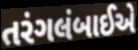
તરંગલંબાઈએ